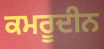
ਕਮਰੂਦੀਨ